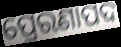
ପ୍ରେରଣାପଦ